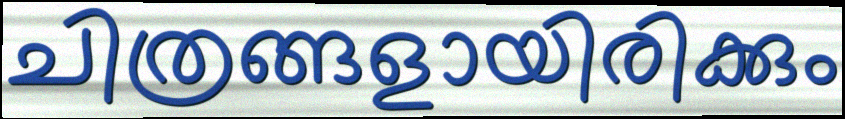
ചിത്രങ്ങളായിരിക്കും